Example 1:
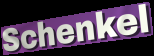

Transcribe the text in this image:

Schenkel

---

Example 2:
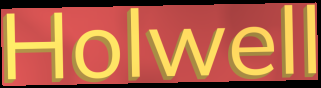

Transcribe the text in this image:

Holwell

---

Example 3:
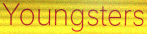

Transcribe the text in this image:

Youngsters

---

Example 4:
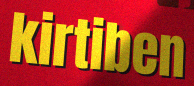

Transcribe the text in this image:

kirtiben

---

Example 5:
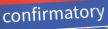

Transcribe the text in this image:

confirmatory